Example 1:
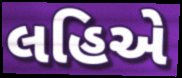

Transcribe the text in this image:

લહિએ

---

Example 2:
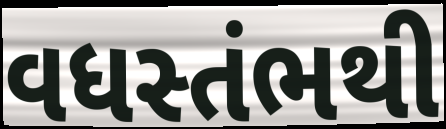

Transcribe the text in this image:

વધસ્તંભથી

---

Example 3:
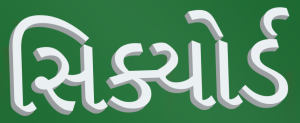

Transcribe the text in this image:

સિક્યોર્ડ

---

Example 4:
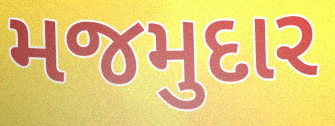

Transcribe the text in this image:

મજમુદાર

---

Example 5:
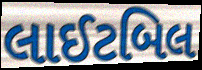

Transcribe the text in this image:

લાઈટબિલ